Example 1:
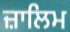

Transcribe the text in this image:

ਜ਼ਾਲਿਮ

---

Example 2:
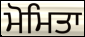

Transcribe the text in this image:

ਮੋਮਿਤਾ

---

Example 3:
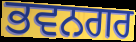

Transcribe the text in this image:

ਭਵਨਗਰ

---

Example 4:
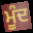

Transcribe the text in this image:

ਮੂੰਦ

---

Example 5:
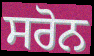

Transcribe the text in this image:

ਸਰੋਨ